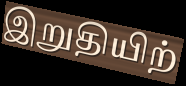
இறுதியிற்